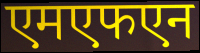
एमएफएन